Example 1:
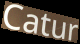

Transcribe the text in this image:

Catur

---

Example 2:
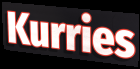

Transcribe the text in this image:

Kurries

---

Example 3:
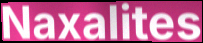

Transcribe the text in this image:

Naxalites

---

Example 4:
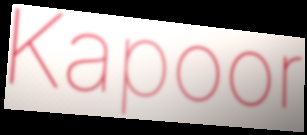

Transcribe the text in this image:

Kapoor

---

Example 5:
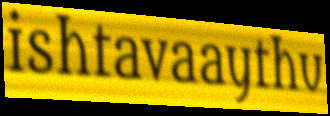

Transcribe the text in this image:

ishtavaaythu